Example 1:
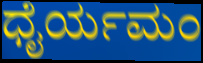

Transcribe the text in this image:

ಧೈರ್ಯಮಂ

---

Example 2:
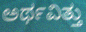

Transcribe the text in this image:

ಅರ್ಥವಿತ್ತು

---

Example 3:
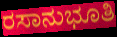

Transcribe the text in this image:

ರಸಾನುಭೂತಿ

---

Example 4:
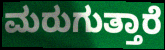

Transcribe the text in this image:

ಮರುಗುತ್ತಾರೆ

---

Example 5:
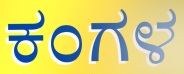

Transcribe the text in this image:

ಕಂಗಳ